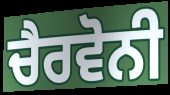
ਚੈਰਵੋਨੀ